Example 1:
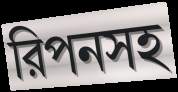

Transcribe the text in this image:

রিপনসহ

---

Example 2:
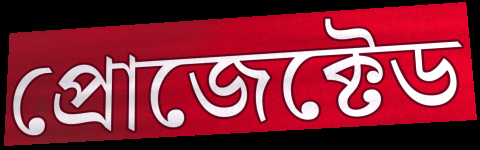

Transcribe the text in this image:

প্রোজেক্টেড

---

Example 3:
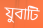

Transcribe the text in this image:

যুবাটি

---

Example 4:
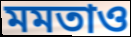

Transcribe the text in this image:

মমতাও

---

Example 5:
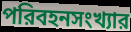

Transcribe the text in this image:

পরিবহনসংখ্যার